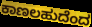
ಕಾಣಲಹುದೆಂದ